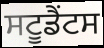
ਸਟੂਡੈਂਟਸ